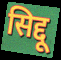
सिद्दू